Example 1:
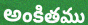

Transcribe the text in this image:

అంకితము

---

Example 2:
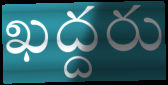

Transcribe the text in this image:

ఖద్దరు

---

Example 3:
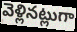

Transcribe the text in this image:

వెళ్లినట్లుగా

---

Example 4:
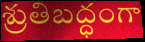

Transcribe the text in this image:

శ్రుతిబద్ధంగా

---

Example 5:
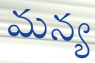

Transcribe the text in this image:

మన్య